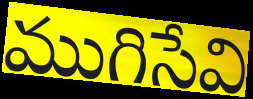
ముగిసేవి